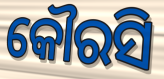
କୌରସି